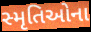
સ્મૃતિઓના